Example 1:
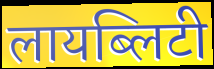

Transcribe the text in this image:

लायब्लिटी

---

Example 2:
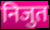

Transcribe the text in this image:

निजुत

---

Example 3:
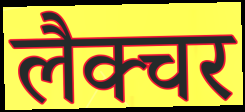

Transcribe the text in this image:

लैक्चर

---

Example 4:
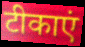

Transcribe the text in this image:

टीकाएं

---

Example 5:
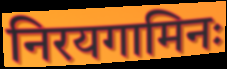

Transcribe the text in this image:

निरयगामिनः